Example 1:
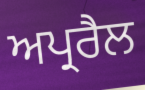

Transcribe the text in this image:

ਅਪ੍ਰਰੈਲ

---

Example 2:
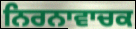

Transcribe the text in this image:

ਨਿਰਨਾਵਾਚਕ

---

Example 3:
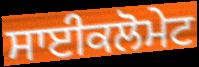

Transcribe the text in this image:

ਸਾਈਕਲੋਮੇਟ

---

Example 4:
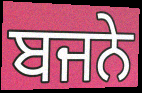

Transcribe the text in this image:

ਬਜਨੇ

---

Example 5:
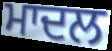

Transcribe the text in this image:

ਮਾਦਲ